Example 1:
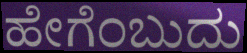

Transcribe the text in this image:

ಹೇಗೆಂಬುದು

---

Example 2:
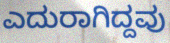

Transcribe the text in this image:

ಎದುರಾಗಿದ್ದವು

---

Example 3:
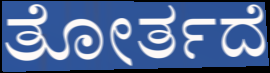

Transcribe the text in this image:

ತೋರ್ತದೆ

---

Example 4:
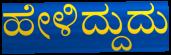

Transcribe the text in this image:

ಹೇಳಿದ್ದುದು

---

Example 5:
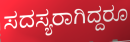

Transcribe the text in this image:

ಸದಸ್ಯರಾಗಿದ್ದರೂ